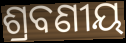
ଶ୍ରବଣୀୟ